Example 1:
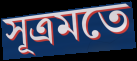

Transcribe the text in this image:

সূত্ৰমতে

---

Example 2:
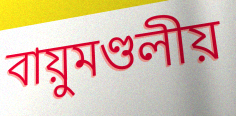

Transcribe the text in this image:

বায়ুমণ্ডলীয়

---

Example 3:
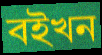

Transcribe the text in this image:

বইখন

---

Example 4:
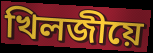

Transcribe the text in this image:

খিলজীয়ে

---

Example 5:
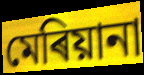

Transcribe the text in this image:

মেৰিয়ানা